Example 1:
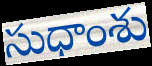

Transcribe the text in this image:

సుధాంశు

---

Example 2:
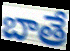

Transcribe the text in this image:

బాతే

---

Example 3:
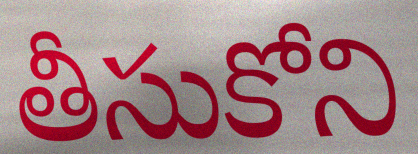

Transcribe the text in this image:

తీసుకోని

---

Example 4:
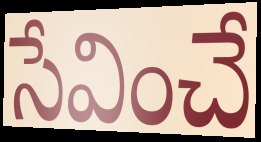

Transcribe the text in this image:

సేవించే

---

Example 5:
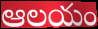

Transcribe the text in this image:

ఆలయం